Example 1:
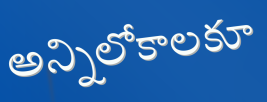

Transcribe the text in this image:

అన్నిలోకాలకూ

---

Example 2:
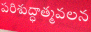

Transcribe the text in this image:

పరిశుద్ధాత్మవలన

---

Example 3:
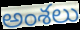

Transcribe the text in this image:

అంశలు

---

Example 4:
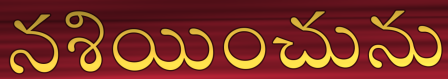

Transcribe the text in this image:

నశియించును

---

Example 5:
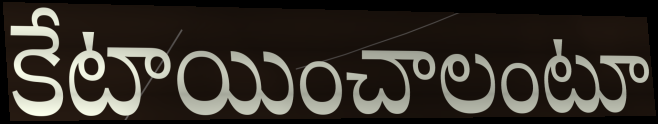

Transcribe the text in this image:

కేటాయించాలంటూ